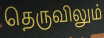
தெருவிலும்